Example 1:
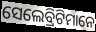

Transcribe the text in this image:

ସେଲେବ୍ରିଟିମାନେ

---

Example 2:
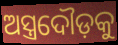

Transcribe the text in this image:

ଅସ୍ତ୍ରଦୌଡ଼କୁ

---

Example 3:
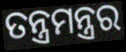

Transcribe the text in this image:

ତନ୍ତ୍ରମନ୍ତ୍ରର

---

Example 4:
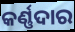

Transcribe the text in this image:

କର୍ଣ୍ଣଦାର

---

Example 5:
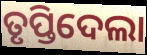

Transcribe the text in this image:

ତୃପ୍ତିଦେଲା